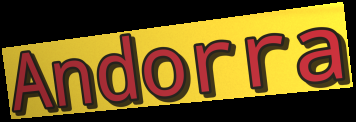
Andorra